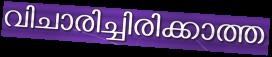
വിചാരിച്ചിരിക്കാത്ത